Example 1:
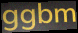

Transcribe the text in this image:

ggbm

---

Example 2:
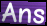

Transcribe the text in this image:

Ans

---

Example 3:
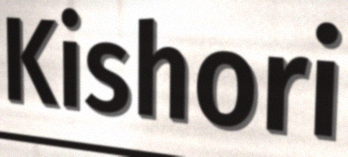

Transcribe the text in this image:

Kishori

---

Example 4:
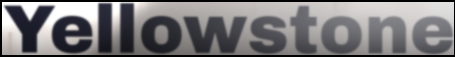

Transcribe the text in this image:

Yellowstone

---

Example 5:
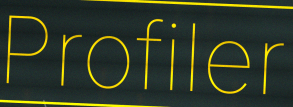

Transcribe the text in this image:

Profiler